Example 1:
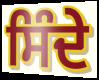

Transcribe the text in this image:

ਸਿੰਦੇ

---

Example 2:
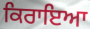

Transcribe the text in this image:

ਕਿਰਾਇਆ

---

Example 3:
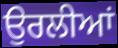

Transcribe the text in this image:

ਉਰਲੀਆਂ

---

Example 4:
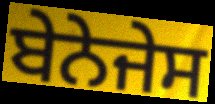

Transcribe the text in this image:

ਬੇਨੇਜੇਸ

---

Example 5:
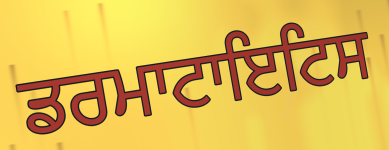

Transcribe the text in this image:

ਡਰਮਾਟਾਇਟਿਸ